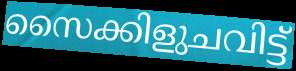
സൈക്കിളുചവിട്ട്